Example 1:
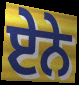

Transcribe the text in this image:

ਏੇਨੇ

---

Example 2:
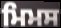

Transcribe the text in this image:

ਮਿਮਸ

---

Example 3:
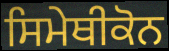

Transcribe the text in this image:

ਸਿਮੇਥੀਕੋਨ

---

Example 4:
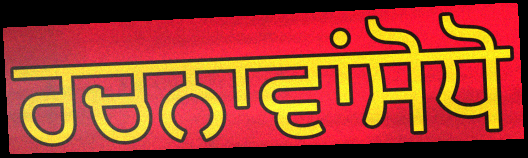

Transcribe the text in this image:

ਰਚਨਾਵਾਂਸੋਧੋ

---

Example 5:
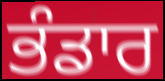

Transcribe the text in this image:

ਭੰਡਾਰ